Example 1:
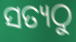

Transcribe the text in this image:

ସତ୍ୟଠୁ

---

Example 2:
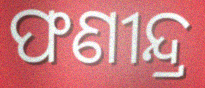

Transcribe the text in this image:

ଫଣୀନ୍ଦ୍ର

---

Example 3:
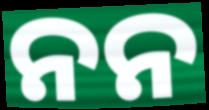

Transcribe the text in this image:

ନନ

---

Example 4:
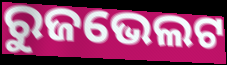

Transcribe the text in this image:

ରୁଜଭେଲଟ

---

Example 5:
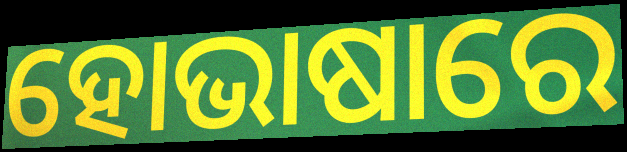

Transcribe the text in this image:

ହୋଭାଷାରେ